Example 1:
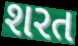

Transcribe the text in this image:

શરત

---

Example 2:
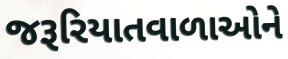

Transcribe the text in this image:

જરૂરિયાતવાળાઓને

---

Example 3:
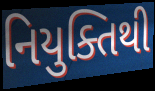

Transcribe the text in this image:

નિયુક્તિથી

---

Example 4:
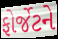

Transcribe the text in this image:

ફોર્જેટને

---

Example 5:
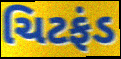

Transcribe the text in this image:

ચિટફંડ